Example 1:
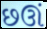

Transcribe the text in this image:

છઊં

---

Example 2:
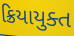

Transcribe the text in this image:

ક્રિયાયુક્ત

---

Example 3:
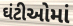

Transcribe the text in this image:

ઘંટીઓમાં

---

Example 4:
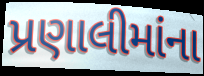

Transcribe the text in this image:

પ્રણાલીમાંના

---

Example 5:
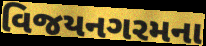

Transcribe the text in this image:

વિજયનગરમના